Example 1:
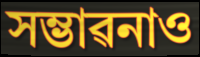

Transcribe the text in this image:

সম্ভাৱনাও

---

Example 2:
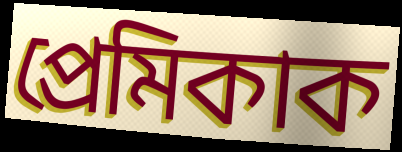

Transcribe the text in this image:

প্ৰেমিকাক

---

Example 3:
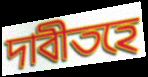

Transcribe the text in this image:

দাবীতহে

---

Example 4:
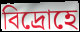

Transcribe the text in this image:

বিদ্ৰোহে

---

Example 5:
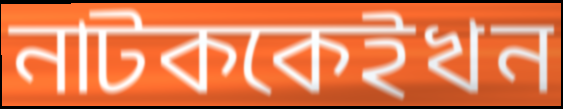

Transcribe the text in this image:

নাটককেইখন